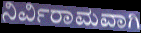
ನಿರ್ವಿರಾಮವಾಗಿ